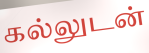
கல்லுடன்